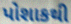
પોશાકથી